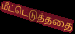
மீட்டெடுத்ததை